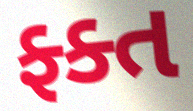
ફ્ક્ત